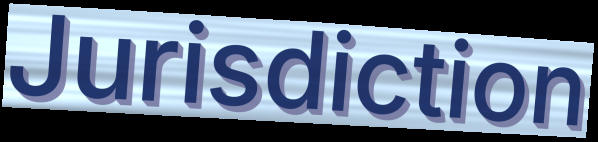
Jurisdiction